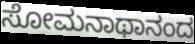
ಸೋಮನಾಥಾನಂದ